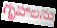
గృహాలను